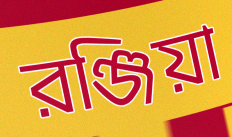
রঞ্জিয়া